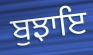
ਬੁਝਾਇ